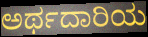
ಅರ್ಥದಾರಿಯ